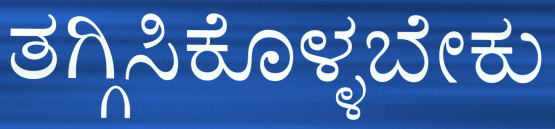
ತಗ್ಗಿಸಿಕೊಳ್ಳಬೇಕು